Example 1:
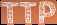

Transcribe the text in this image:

TTP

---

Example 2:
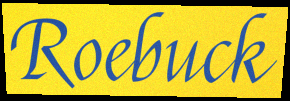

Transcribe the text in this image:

Roebuck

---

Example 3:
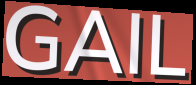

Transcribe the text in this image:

GAIL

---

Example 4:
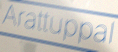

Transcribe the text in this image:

Arattuppal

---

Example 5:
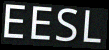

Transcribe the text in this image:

EESL